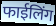
फाईलिंग